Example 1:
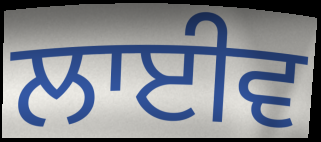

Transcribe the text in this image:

ਲਾਈਵ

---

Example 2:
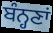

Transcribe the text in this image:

ਬੰਨ੍ਹਣਾਂ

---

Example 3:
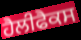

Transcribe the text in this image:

ਹੈਲੀਫੈਕਸ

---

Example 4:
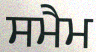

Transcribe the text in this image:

ਸਮੈਮ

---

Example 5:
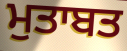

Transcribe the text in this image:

ਮੁਤਾਬਤ